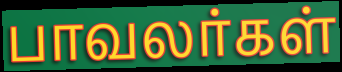
பாவலர்கள்